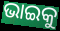
ଭାଇକୁ